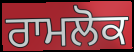
ਰਾਮਲੋਕ